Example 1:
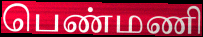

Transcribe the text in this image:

பெண்மணி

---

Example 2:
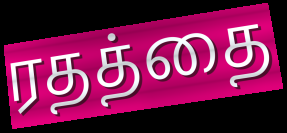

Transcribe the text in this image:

ரதத்தை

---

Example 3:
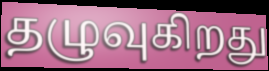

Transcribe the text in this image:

தழுவுகிறது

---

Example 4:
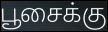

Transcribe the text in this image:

பூசைக்கு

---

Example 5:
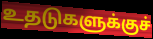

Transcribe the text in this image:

உதடுகளுக்குச்